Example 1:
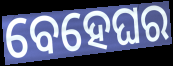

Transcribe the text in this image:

ବେହେଘର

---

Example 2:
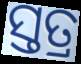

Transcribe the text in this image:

ସ୍ତତ୍ର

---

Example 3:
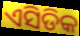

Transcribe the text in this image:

ଏସିଡିକ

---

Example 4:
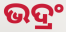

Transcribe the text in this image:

ଭଦ୍ରଂ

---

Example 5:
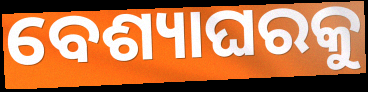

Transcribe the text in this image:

ବେଶ୍ୟାଘରକୁ